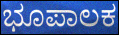
ಭೂಪಾಲಕ